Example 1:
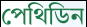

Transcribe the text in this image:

পেথিডিন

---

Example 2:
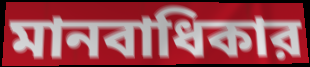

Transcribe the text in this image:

মানবাধিকার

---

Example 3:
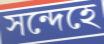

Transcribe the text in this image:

সন্দেহে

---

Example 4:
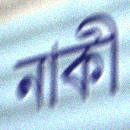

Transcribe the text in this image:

নাকী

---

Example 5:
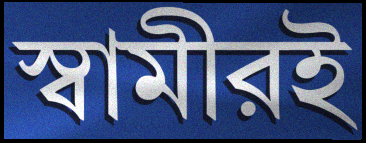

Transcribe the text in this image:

স্বামীরই